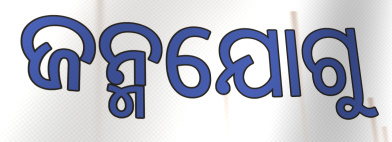
ଜନ୍ମଯୋଗୁ